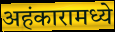
अहंकारामध्ये